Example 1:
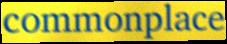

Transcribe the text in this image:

commonplace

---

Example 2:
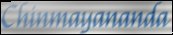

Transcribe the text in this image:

Chinmayananda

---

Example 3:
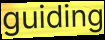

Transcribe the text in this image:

guiding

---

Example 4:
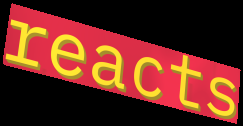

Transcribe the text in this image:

reacts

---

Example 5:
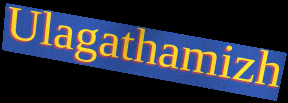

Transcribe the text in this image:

Ulagathamizh